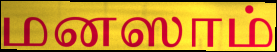
மனஸாம்